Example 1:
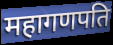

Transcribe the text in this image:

महागणपति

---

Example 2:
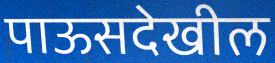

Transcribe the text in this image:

पाऊसदेखील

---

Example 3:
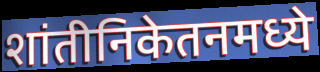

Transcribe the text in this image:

शांतीनिकेतनमध्ये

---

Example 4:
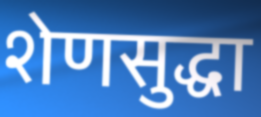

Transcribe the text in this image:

शेणसुद्धा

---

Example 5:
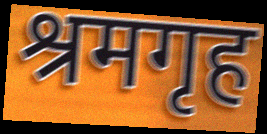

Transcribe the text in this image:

श्रमगृह